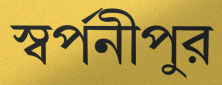
স্বর্পনীপুর